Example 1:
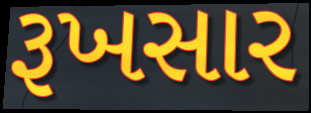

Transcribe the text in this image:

રૂખસાર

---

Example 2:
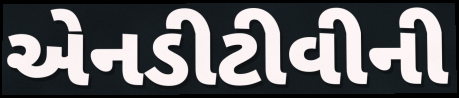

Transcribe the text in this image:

એનડીટીવીની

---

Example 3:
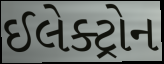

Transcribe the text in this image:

ઈલેક્ટ્રોન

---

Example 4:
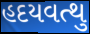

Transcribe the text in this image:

હદયવત્થુ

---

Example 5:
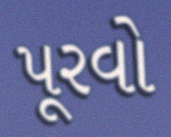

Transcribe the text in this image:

પૂરવો